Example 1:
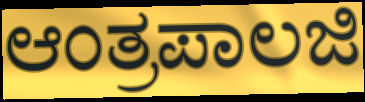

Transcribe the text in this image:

ಆಂತ್ರಪಾಲಜಿ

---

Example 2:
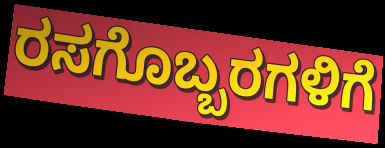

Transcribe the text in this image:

ರಸಗೊಬ್ಬರಗಳಿಗೆ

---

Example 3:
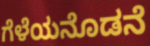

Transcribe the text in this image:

ಗೆಳೆಯನೊಡನೆ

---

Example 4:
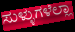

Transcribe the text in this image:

ಸುಳ್ಳುಗಳೆಲ್ಲಾ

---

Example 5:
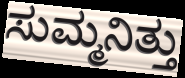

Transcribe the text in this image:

ಸುಮ್ಮನಿತ್ತು